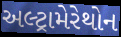
અલ્ટ્રામેરેથોન